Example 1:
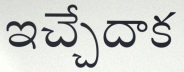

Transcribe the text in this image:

ఇచ్చేదాక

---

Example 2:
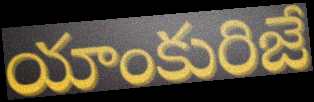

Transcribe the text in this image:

యాంకురిజే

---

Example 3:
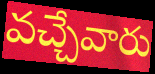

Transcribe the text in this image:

వచ్చేవారు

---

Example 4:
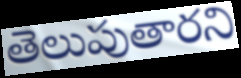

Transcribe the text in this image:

తెలుపుతారని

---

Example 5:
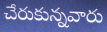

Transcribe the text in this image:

చేరుకున్నవారు